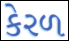
કેરળ